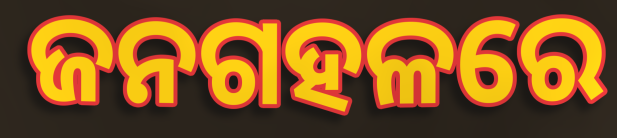
ଜନଗହଳରେ